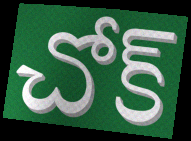
చోక్